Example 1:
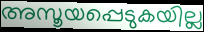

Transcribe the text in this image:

അസൂയപ്പെടുകയില്ല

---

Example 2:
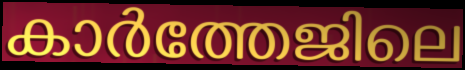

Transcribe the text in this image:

കാർത്തേജിലെ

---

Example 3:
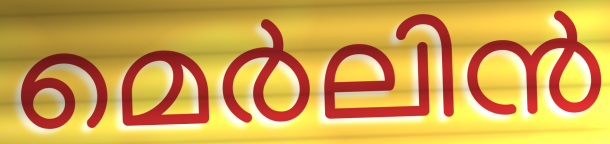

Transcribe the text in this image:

മെർലിൻ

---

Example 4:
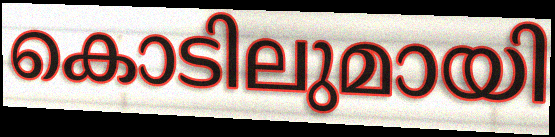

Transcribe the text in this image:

കൊടിലുമായി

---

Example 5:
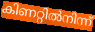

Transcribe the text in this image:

കിണറ്റിൽനിന്ന്